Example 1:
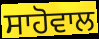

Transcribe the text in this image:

ਸਾਹੋਵਾਲ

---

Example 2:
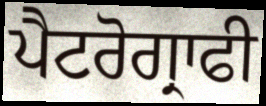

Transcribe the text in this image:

ਪੈਟਰੋਗ੍ਰਾਫੀ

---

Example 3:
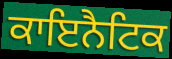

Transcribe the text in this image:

ਕਾਇਨੈਟਿਕ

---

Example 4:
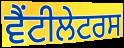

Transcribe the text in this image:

ਵੈਂਟੀਲੇਟਰਸ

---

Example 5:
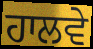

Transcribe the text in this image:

ਹਾਲਵੇ